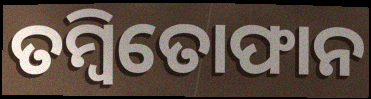
ତମ୍ବିତୋଫାନ